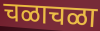
चळाचळा